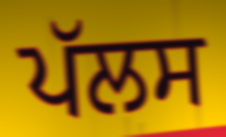
ਪੱਲਸ